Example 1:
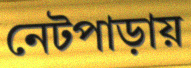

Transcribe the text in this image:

নেটপাড়ায়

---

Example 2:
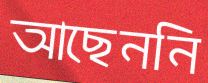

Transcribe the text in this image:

আছেননি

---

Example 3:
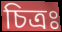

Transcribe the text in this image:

চিত্রঃ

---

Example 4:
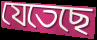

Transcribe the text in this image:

যেতেছে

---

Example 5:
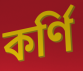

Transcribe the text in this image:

কর্ণি